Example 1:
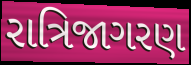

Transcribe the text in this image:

રાત્રિજાગરણ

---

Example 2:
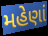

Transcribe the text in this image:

મહેણાં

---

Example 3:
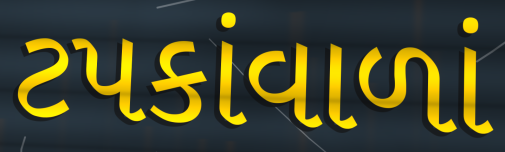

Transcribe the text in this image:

ટપકાંવાળાં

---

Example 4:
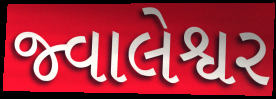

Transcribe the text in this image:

જ્વાલેશ્વર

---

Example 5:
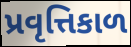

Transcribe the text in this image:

પ્રવૃત્તિકાળ